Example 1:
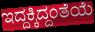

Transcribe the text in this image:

ಇದ್ದಕ್ಕಿದ್ದಂತೆಯೆ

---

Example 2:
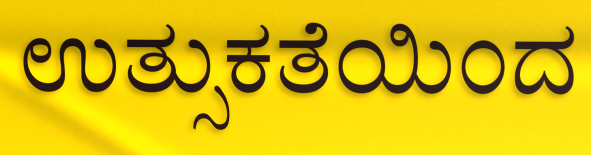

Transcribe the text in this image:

ಉತ್ಸುಕತೆಯಿಂದ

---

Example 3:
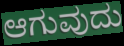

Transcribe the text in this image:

ಆಗುವುದು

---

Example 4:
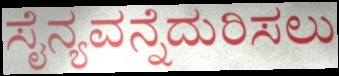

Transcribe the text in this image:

ಸೈನ್ಯವನ್ನೆದುರಿಸಲು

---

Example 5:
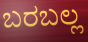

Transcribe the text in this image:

ಬರಬಲ್ಲ